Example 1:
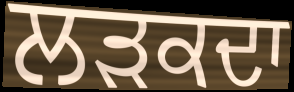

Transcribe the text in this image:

ਲੜਕਦਾ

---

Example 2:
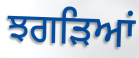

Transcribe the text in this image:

ਝਗੜਿਆਂ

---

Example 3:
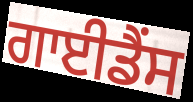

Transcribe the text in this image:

ਗਾਈਡੈਂਸ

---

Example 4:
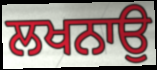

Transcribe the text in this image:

ਲਖਨਾਉ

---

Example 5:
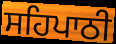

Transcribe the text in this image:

ਸਹਿਪਾਠੀ